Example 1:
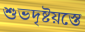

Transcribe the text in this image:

শুভদৃষ্টয়স্তে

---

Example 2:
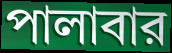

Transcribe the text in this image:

পালাবার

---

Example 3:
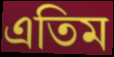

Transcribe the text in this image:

এতিম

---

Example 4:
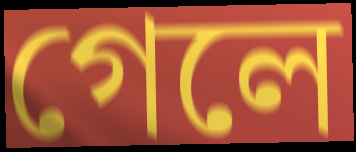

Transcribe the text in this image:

গেলে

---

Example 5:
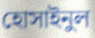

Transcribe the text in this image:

হোসাইনুল